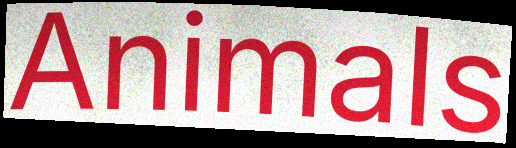
Animals